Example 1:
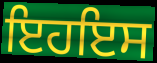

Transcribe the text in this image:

ਇਹਇਸ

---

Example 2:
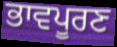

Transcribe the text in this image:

ਭਾਵਪੂਰਣ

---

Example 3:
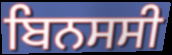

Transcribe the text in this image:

ਬਿਨਸਸੀ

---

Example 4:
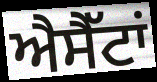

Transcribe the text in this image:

ਐਸੈੱਟਾਂ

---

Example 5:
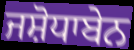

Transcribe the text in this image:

ਜਸ਼ੋਧਾਬੇਨ